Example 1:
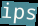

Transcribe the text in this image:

ips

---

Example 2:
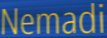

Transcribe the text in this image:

Nemadi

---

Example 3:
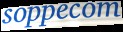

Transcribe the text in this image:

soppecom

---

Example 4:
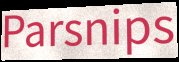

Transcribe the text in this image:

Parsnips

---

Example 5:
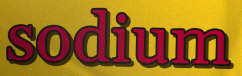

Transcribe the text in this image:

sodium